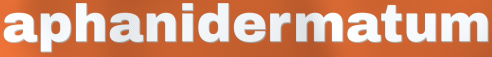
aphanidermatum